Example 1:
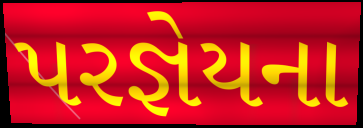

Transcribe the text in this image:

પરજ્ઞેયના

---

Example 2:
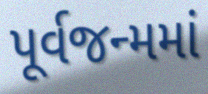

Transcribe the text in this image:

પૂર્વજન્મમાં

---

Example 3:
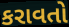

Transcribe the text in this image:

કરાવતો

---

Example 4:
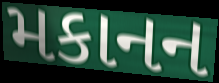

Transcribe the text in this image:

મકાનન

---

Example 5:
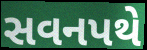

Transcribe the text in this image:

સવનપથે